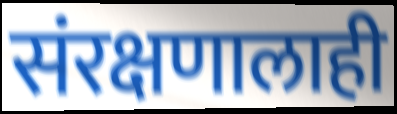
संरक्षणालाही